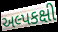
અલ્પકક્ષી